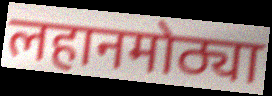
लहानमोठ्या